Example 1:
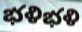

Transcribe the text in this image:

భళిభళి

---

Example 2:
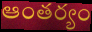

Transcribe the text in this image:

ఆంతర్యం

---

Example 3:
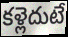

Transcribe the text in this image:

కళ్లెదుటే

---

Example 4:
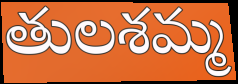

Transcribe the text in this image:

తులశమ్మ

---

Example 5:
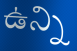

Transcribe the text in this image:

ఉన్ని